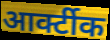
आर्क्टीक